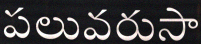
పలువరుసా